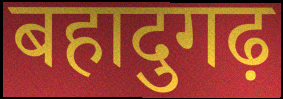
बहादुगढ़